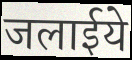
जलाईये